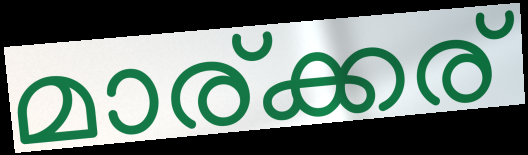
മാര്ക്കര്